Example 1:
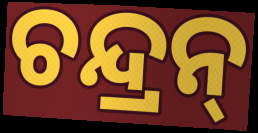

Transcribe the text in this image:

ଚନ୍ଦ୍ରନ୍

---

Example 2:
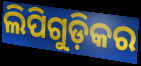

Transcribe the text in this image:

ଲିପିଗୁଡ଼ିକର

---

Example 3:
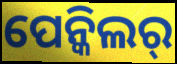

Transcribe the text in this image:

ପେନ୍କିଲର୍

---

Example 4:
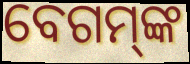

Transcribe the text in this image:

ବେଗମ୍‌ଙ୍କ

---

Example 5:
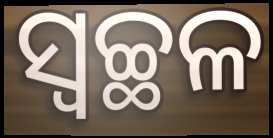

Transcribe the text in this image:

ସ୍ବଚ୍ଛଳ